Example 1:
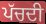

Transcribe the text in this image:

ਪੱਚਦੀ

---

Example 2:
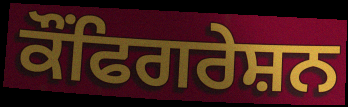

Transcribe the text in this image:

ਕੌਂਫਿਗਰੇਸ਼ਨ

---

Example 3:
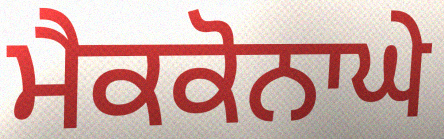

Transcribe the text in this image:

ਮੈਕਕੋਨਾਘੇ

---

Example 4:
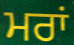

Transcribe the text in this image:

ਮਰਾਂ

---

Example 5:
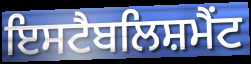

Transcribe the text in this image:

ਇਸਟੈਬਲਿਸ਼ਮੈਂਟ